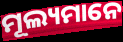
ମୂଲ୍ୟମାନେ